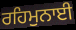
ਰਹਿਮੁਨਾਈ